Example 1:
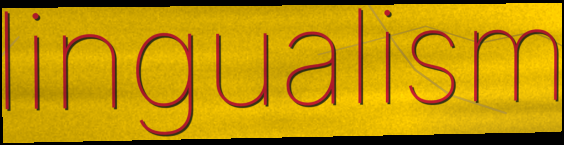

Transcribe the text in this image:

lingualism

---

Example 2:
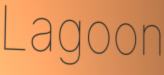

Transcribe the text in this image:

Lagoon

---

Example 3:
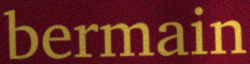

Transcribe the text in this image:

bermain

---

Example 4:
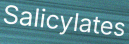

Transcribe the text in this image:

Salicylates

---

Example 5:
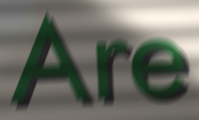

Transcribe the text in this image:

Are